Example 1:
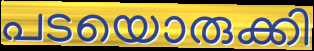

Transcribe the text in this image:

പടയൊരുക്കി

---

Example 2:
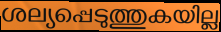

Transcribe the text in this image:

ശല്യപ്പെടുത്തുകയില്ല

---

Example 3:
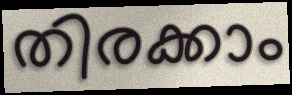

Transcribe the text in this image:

തിരക്കാം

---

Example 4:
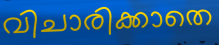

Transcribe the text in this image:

വിചാരിക്കാതെ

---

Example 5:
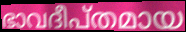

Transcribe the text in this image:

ഭാവദീപ്തമായ